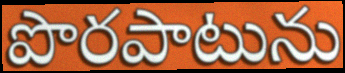
పొరపాటును